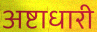
अष्टाधारी